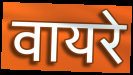
वायरे